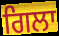
ਗਿਲਾ